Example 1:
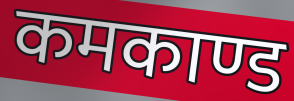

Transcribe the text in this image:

कमकाण्ड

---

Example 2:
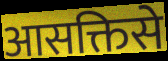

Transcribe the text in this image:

आसक्तिसे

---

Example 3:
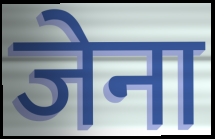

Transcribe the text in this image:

जेना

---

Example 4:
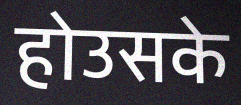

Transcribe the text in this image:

होउसके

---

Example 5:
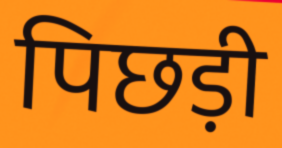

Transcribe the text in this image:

पिछड़ी